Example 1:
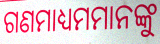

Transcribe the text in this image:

ଗଣମାଧ୍ୟମମାନଙ୍କୁ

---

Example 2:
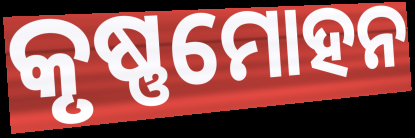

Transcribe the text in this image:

କୃଷ୍ଣମୋହନ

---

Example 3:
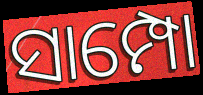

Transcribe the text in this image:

ସାମ୍ପୋ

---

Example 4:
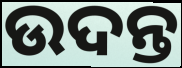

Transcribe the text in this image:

ଉଦନ୍ତ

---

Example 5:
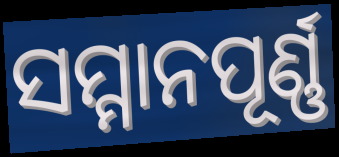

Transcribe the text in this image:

ସମ୍ମାନପୂର୍ଣ୍ଣ